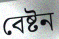
বেষ্টন